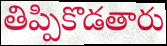
తిప్పికొడతారు